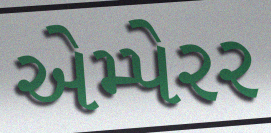
એમ્પેરર